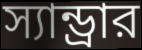
স্যান্ড্রার